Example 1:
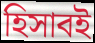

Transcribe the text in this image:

হিসাবই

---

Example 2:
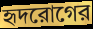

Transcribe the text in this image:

হৃদরোগের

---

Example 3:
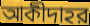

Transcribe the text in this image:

আকীদাহর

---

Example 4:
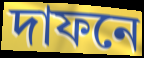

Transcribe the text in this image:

দাফনে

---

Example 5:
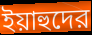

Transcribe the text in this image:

ইয়াহুদের